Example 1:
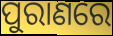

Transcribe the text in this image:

ପୁରାଣରେ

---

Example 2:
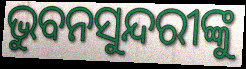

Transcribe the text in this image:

ଭୁବନସୁନ୍ଦରୀଙ୍କୁ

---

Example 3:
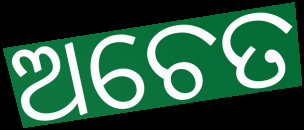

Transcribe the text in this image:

ଅଚେତ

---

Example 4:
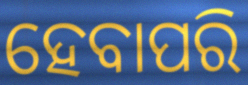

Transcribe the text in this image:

ହେବାପରି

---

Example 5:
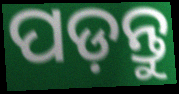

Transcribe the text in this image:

ପଡ଼ନ୍ତୁ